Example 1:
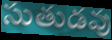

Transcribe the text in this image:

సుతుడవు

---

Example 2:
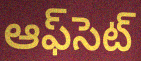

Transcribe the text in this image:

ఆఫ్‌సెట్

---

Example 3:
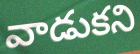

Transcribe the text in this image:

వాడుకని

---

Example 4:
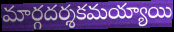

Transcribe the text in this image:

మార్గదర్శకమయ్యాయి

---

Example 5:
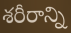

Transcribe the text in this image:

శరీరాన్ని